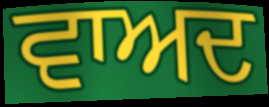
ਵਾਅਦ